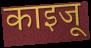
काइजू